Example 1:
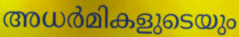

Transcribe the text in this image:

അധർമികളുടെയും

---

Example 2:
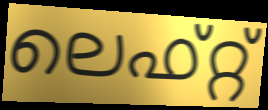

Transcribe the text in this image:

ലെഫ്റ്റ്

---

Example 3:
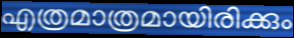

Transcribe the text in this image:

എത്രമാത്രമായിരിക്കും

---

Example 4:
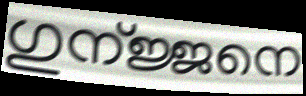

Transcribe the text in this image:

ഗുന്ജ്ജനെ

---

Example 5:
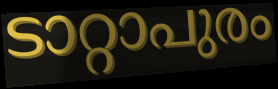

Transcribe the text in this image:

ടാറ്റാപുരം